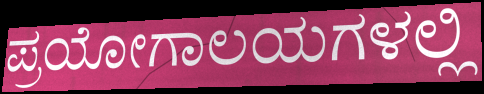
ಪ್ರಯೋಗಾಲಯಗಳಲ್ಲಿ